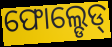
ଫୋଲ୍ଡେଡ୍